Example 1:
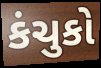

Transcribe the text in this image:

કંચુકો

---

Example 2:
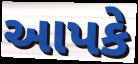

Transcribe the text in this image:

આપકે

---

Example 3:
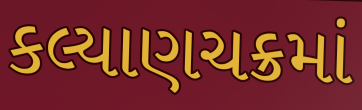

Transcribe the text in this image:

કલ્યાણચક્રમાં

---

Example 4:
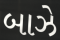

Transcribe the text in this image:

બાઝે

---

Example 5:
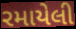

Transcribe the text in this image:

રમાયેલી